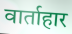
वार्ताहार